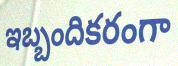
ఇబ్బందికరంగా